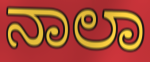
ನಾಲಾ